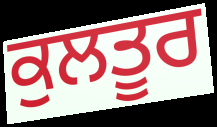
ਕੁਲਤੂਰ